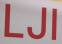
LJI